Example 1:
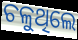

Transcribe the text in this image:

ଚଳୁଥିଲେ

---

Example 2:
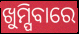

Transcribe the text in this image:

ଖୁମ୍ପିବାରେ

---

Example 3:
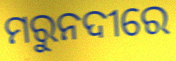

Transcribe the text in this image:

ମରୁନଦୀରେ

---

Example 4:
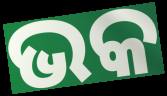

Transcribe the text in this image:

ଭକ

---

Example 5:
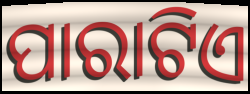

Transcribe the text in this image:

ପାରାଟିଏ